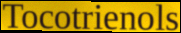
Tocotrienols